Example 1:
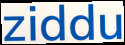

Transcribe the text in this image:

ziddu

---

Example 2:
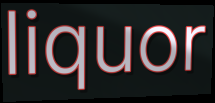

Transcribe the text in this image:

liquor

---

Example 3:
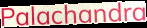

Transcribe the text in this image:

Palachandra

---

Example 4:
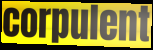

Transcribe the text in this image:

corpulent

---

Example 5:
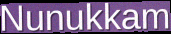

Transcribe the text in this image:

Nunukkam